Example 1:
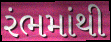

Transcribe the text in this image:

રંભમાંથી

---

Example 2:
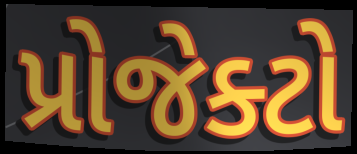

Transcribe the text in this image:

પ્રોજેક્ટો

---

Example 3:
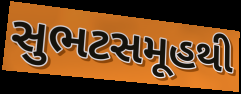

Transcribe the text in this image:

સુભટસમૂહથી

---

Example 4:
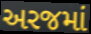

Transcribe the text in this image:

અરજમાં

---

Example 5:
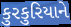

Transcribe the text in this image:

કુરકુરિયાને